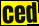
ced